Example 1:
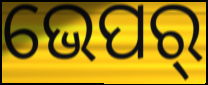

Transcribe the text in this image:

ଭେପର୍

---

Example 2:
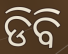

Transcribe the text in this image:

ଡିବି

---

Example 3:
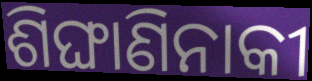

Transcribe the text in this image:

ଶିଙ୍ଘାଣିନାକୀ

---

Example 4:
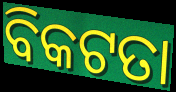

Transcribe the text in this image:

ବିକଟତା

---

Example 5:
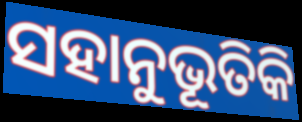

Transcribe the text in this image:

ସହାନୁଭୂତିକି